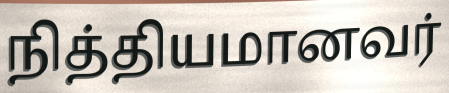
நித்தியமானவர்